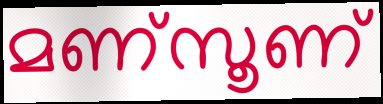
മണ്സൂണ്